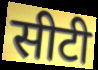
सीटी